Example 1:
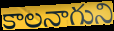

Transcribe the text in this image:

కాలనాగుని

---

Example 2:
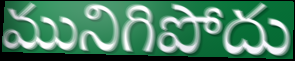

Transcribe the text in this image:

మునిగిపోదు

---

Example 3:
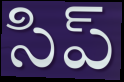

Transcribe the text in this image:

సిప్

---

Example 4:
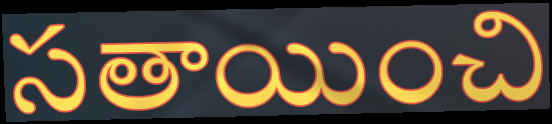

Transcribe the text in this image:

సతాయించి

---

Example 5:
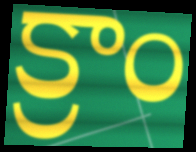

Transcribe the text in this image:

క్రాం